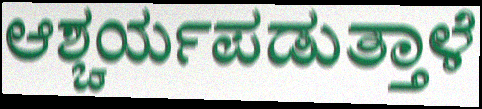
ಆಶ್ಚರ್ಯಪಡುತ್ತಾಳೆ